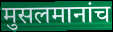
मुसलमानांच